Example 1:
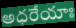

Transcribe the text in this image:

అధరేయాః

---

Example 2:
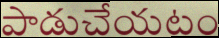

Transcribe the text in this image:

పాడుచేయటం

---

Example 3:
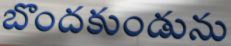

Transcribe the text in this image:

బొందకుండును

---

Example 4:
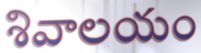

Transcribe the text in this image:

శివాలయం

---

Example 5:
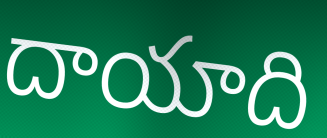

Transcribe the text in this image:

దాయాది